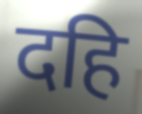
दहि